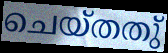
ചെയ്തതു്